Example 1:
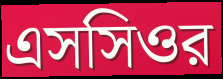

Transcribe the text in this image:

এসসিওর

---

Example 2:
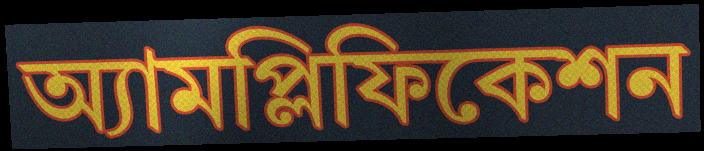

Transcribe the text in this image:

অ্যামপ্লিফিকেশন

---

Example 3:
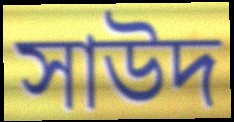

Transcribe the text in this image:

সাউদ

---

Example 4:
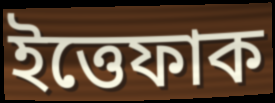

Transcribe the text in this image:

ইত্তেফাক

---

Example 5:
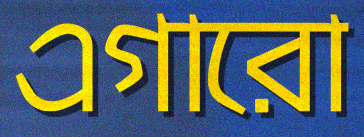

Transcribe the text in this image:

এগারো